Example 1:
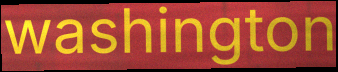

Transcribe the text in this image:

washington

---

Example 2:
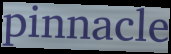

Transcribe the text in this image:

pinnacle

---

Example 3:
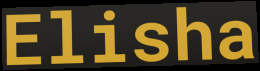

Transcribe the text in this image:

Elisha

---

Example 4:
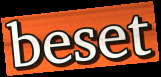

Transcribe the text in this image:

beset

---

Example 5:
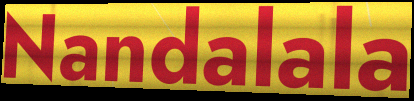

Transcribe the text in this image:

Nandalala